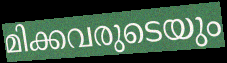
മിക്കവരുടെയും